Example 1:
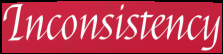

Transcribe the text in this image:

Inconsistency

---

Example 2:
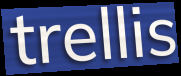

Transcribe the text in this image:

trellis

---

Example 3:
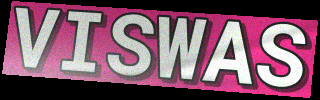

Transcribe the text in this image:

VISWAS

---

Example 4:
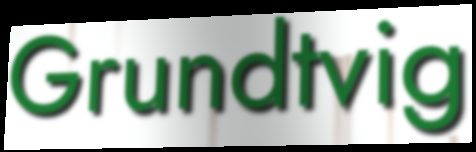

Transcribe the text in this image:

Grundtvig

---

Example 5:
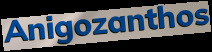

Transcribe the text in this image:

Anigozanthos